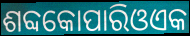
ଶବ୍ଦକୋପାରିଓଏକ